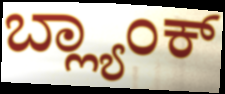
ಬ್ಲ್ಯಾಂಕ್